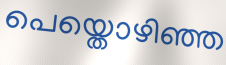
പെയ്തൊഴിഞ്ഞ